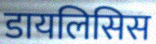
डायलिसिस